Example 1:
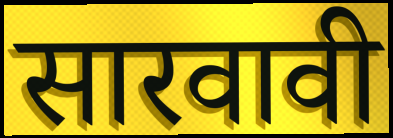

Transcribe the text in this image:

सारवावी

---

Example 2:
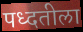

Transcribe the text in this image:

पध्दतीला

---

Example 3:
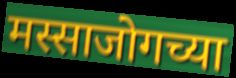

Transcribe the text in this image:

मस्साजोगच्या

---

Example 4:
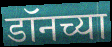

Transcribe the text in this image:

डॉनच्या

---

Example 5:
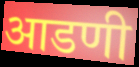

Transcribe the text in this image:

आडणी